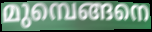
മുമ്പെങ്ങനെ